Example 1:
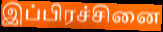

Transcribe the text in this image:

இப்பிரச்சினை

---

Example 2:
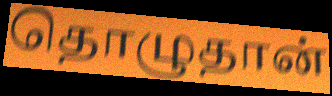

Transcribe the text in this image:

தொழுதான்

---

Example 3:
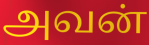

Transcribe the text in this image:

அவன்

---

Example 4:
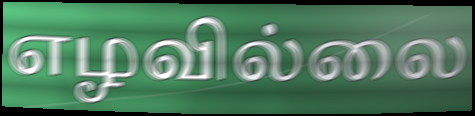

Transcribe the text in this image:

எழவில்லை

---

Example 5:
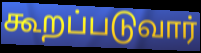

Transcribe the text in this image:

கூறப்படுவார்